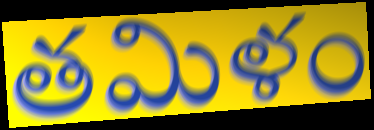
తమిళం